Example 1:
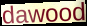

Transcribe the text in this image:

dawood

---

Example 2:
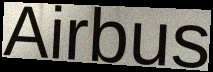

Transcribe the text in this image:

Airbus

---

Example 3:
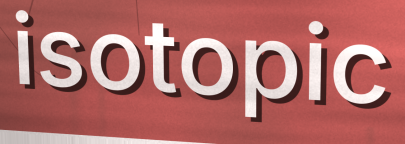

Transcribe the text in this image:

isotopic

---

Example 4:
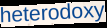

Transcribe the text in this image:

heterodoxy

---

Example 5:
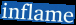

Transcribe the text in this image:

inflame